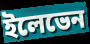
ইলেভেন